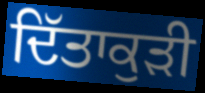
ਦਿੱਤਾਕੁੜੀ